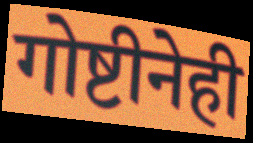
गोष्टीनेही